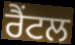
ਰੈਂਟਲ